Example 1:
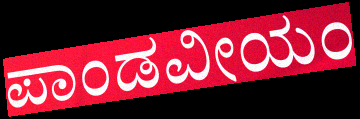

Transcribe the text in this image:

ಪಾಂಡವೀಯಂ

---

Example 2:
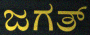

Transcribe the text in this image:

ಜಗತ್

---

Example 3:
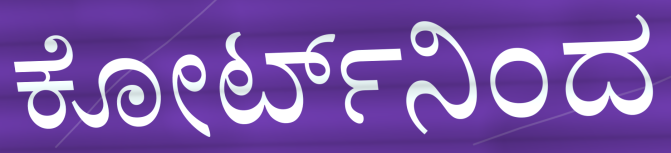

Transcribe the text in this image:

ಕೋರ್ಟ್‌ನಿಂದ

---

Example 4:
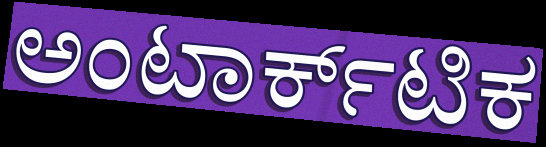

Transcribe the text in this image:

ಅಂಟಾರ್ಕ್‍ಟಿಕ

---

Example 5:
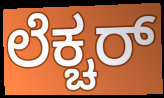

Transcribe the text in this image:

ಲೆಕ್ಚರ್